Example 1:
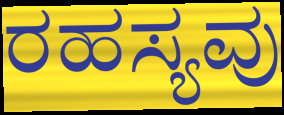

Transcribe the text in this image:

ರಹಸ್ಯವು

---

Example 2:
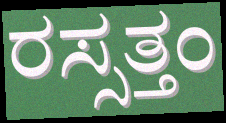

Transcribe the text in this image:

ರಸ್ಸತ್ತಂ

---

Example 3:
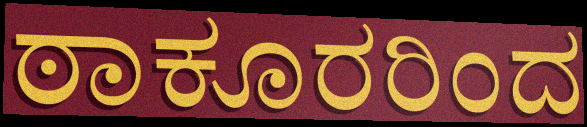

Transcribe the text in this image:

ಠಾಕೂರರಿಂದ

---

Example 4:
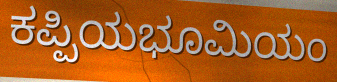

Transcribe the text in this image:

ಕಪ್ಪಿಯಭೂಮಿಯಂ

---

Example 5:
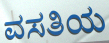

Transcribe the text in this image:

ವಸತಿಯ